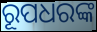
ରୂପଧରଙ୍କ